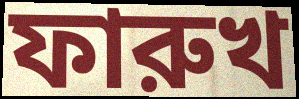
ফারুখ